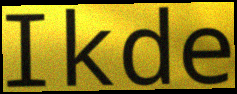
Ikde